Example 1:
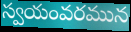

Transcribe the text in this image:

స్వయంవరమున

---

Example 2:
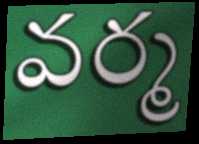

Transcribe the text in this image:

వర్మ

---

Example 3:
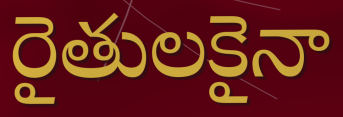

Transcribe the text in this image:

రైతులకైనా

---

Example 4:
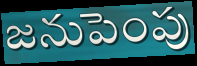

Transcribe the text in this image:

జనుపెంపు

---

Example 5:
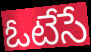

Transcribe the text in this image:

ఓటేసే